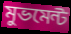
মুভমেন্ট